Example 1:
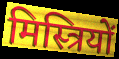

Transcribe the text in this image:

मिस्त्रियों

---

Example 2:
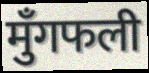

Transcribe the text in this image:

मुँगफली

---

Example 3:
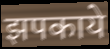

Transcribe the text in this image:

झपकाये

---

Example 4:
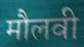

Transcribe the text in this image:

मौलवी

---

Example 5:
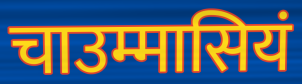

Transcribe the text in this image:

चाउम्मासियं